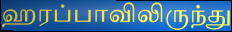
ஹரப்பாவிலிருந்து